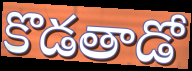
కొడతాడో